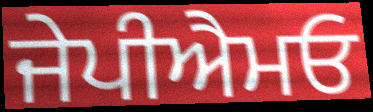
ਜੇਪੀਐਮਓ